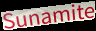
Sunamite